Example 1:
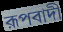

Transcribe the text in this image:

রূপবাদী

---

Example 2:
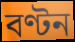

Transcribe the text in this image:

বণ্টন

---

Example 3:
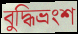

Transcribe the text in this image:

বুদ্ধিভ্রংশ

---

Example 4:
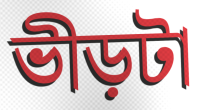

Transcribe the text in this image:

ভীড়টা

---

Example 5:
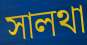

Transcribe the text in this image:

সালথা